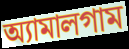
অ্যামালগাম